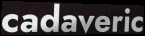
cadaveric